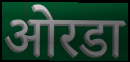
ओरडा